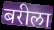
बरीला